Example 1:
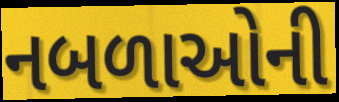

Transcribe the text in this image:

નબળાઓની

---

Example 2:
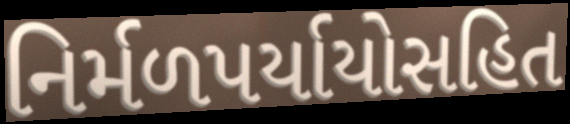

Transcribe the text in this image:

નિર્મળપર્યાયોસહિત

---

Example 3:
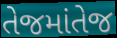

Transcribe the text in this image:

તેજમાંતેજ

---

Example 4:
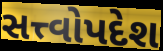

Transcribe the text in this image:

સત્ત્વોપદેશ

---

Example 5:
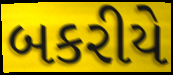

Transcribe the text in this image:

બકરીયે